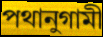
পথানুগামী